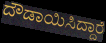
ದೌಡಾಯಿಸಿದ್ದಾರೆ